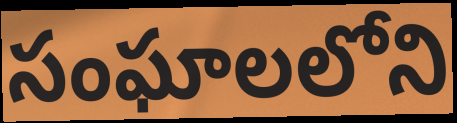
సంఘాలలోని